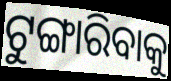
ଟୁଙ୍ଗାରିବାକୁ